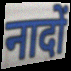
नादों